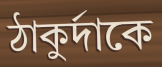
ঠাকুর্দাকে